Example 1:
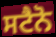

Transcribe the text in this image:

ਸਟੈਨੋ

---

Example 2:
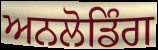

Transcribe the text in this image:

ਅਨਲੋਡਿੰਗ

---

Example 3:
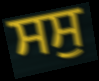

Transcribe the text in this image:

ਸਸੁ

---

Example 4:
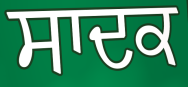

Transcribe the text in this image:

ਸਾਦਕ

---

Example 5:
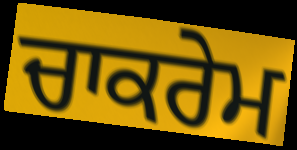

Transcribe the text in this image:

ਚਾਕਰੇਮ